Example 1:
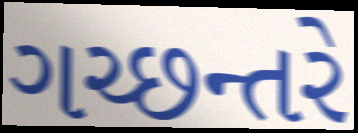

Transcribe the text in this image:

ગચ્છન્તરે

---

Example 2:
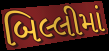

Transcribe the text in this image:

બિલ્લીમાં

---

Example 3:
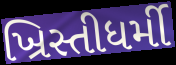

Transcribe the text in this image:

ખ્રિસ્તીધર્મી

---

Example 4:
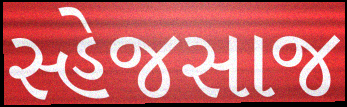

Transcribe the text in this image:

સ્હેજસાજ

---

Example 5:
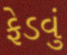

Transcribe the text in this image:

ફેડવું